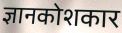
ज्ञानकोशकार